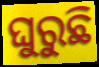
ଘୁରୁଛି